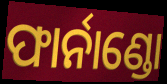
ଫାର୍ନାଣ୍ଡୋ